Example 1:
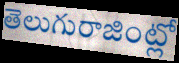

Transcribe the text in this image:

తెలుగురాజింట్లో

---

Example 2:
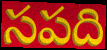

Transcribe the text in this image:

సపది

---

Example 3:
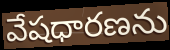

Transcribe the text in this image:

వేషధారణను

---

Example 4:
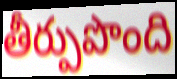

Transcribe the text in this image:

తీర్పుపొంది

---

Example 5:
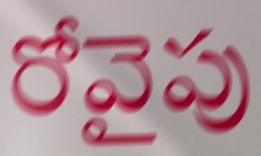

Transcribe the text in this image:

రోవైపు